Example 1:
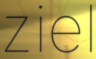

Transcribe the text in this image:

ziel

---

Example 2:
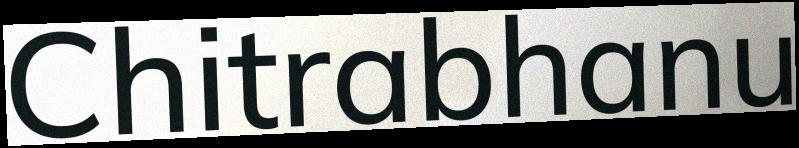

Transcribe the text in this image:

Chitrabhanu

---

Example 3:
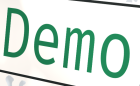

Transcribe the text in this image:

Demo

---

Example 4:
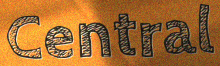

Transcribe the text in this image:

Central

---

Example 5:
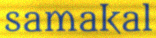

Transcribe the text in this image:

samakal